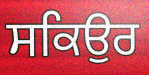
ਸਕਿਉਰ